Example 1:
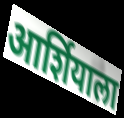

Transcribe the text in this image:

आर्शियाला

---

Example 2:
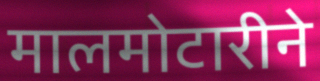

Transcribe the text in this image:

मालमोटारीने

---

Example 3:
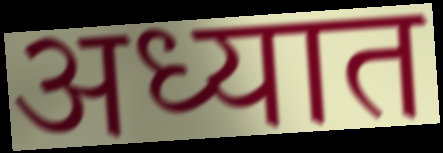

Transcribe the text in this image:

अध्यात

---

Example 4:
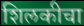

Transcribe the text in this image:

शिलकीचा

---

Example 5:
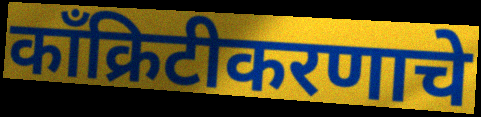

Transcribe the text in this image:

काँक्रिटीकरणाचे